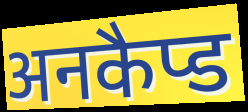
अनकैप्ड